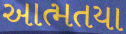
આત્મતયા